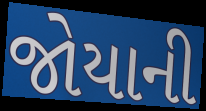
જોયાની